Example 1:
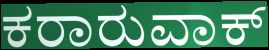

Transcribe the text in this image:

ಕರಾರುವಾಕ್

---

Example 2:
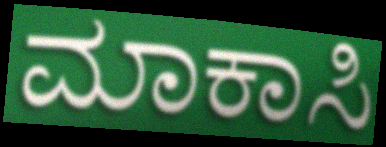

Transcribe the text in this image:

ಮಾಕಾಸಿ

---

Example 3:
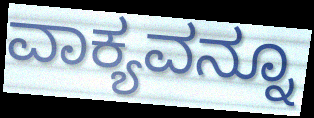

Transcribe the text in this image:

ವಾಕ್ಯವನ್ನೂ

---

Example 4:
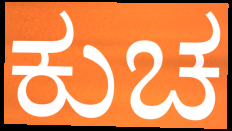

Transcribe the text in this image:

ಕುಚ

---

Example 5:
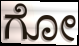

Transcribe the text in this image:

ಗೋ